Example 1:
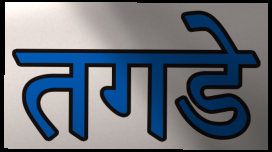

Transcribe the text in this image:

तगडे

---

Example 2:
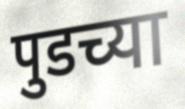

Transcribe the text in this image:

पुडच्या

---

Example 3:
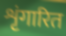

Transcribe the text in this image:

शृंगारित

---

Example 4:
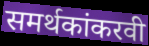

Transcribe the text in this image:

समर्थकांकरवी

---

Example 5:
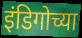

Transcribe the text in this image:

इंडिगोच्या